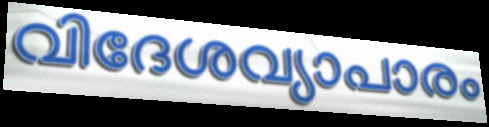
വിദേശവ്യാപാരം